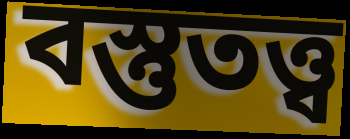
বস্তুতত্ত্ব